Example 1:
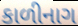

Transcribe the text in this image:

કાળીનાગ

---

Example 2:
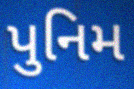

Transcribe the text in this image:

પુનિમ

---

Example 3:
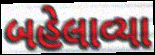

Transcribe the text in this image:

બહેલાવ્યા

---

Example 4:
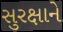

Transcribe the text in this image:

સુરક્ષાને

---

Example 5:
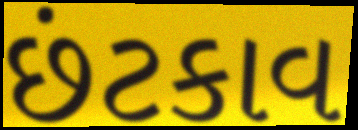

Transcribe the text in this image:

છંટકાવ